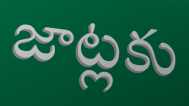
జాట్లకు